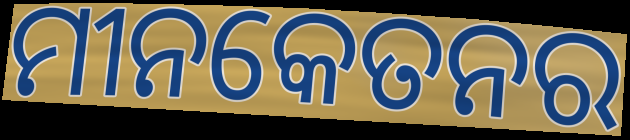
ମୀନକେତନର